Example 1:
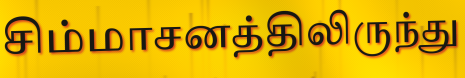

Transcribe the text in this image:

சிம்மாசனத்திலிருந்து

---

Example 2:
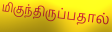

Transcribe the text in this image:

மிகுந்திருப்பதால்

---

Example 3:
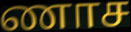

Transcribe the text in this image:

ணாச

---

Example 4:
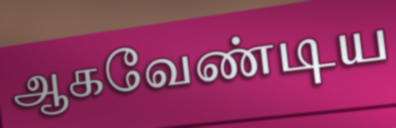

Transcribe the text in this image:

ஆகவேண்டிய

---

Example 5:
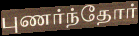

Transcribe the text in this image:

புணர்ந்தோர்